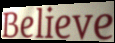
Believe